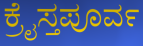
ಕ್ರೈಸ್ತಪೂರ್ವ